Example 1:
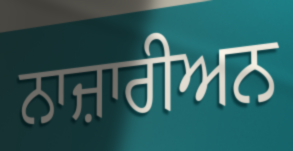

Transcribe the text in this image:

ਨਾਜ਼ਾਰੀਅਨ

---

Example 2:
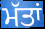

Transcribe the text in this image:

ਮੱਤਾਂ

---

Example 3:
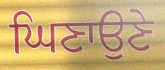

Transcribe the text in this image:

ਘਿਣਾਉਣੇ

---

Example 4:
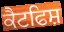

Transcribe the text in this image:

ਕੈਟਫਿਸ਼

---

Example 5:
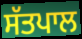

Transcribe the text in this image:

ਸੱਤਪਾਲ